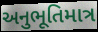
અનુભૂતિમાત્ર